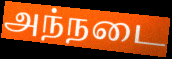
அந்நடை